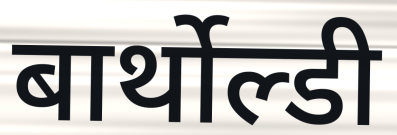
बार्थोल्डी